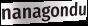
nanagondu